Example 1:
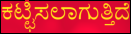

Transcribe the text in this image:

ಕಟ್ಟಿಸಲಾಗುತ್ತಿದೆ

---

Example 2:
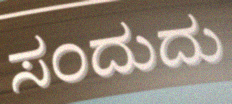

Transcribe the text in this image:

ಸಂದುದು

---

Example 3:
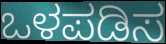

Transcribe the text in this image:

ಒಳಪಡಿಸ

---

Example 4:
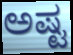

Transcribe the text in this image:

ಅಷ್ಟ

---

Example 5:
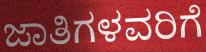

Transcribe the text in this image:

ಜಾತಿಗಳವರಿಗೆ